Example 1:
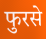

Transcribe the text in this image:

फुरसे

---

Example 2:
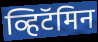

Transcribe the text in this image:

व्हिटॅमिन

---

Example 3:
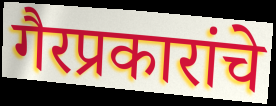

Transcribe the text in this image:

गैरप्रकारांचे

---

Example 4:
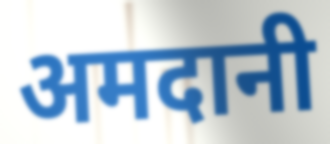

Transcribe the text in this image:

अमदानी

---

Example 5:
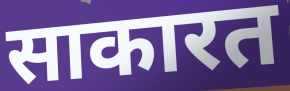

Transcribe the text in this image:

साकारत